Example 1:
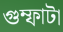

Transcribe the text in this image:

গুম্ফাটা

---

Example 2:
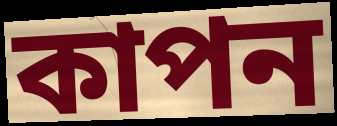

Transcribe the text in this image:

কাপন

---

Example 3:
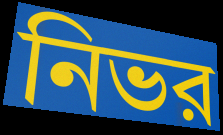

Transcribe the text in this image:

নিভর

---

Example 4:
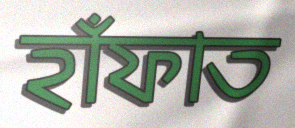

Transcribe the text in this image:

হাঁফাত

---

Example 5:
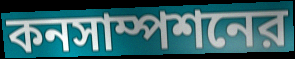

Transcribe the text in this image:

কনসাম্পশনের